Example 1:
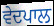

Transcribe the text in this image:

ਵੇਦਪਾਲ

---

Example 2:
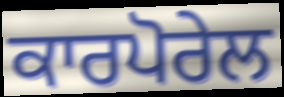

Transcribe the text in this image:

ਕਾਰਪੋਰੇਲ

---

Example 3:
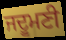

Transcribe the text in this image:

ਜਦੂਮਣੀ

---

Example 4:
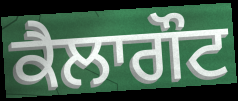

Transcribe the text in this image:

ਕੈਲਾਗੌਟ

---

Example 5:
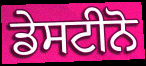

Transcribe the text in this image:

ਡੇਸਟੀਨੋ